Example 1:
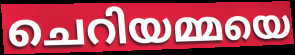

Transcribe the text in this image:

ചെറിയമ്മയെ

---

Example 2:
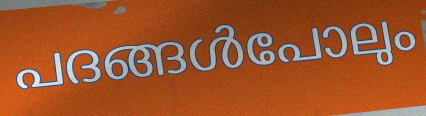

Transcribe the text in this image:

പദങ്ങൾപോലും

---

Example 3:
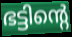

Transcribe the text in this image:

ഭട്ടിന്റെ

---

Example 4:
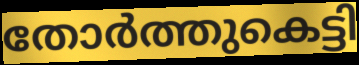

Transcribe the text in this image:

തോർത്തുകെട്ടി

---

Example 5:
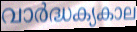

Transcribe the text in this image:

വാർദ്ധക്യകാല